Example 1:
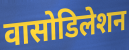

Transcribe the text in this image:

वासोडिलेशन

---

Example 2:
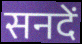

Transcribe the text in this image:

सनदें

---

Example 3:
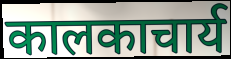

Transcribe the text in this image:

कालकाचार्य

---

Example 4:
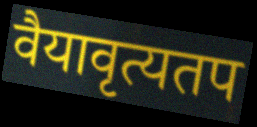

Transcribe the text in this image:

वैयावृत्यतप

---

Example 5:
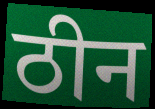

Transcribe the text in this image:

ठीन